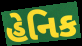
હેનિક